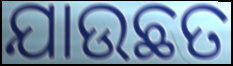
ଯାଉଛତ